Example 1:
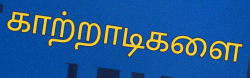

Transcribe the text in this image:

காற்றாடிகளை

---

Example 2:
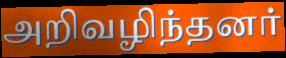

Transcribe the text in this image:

அறிவழிந்தனர்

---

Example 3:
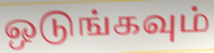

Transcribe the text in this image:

ஒடுங்கவும்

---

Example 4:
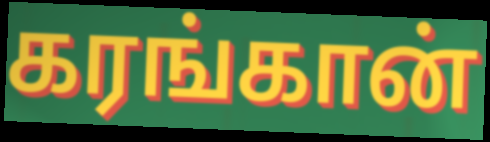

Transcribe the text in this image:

கரங்கான்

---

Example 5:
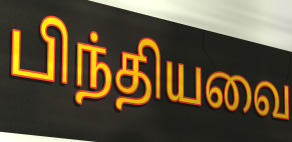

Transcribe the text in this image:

பிந்தியவை